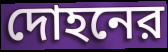
দোহনের